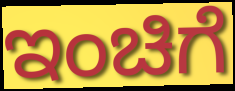
ಇಂಚಿಗೆ